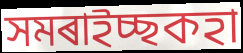
সমৰাইচ্ছকহা